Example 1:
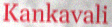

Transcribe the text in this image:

Kankavali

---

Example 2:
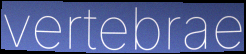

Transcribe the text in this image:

vertebrae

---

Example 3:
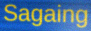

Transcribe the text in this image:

Sagaing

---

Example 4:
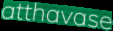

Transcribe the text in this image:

atthavase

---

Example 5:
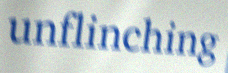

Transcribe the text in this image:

unflinching